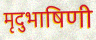
मृदुभाषिणी